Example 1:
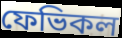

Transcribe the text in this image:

ফেভিকল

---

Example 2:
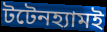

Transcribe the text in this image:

টটেনহ্যামই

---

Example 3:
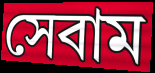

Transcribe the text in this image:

সেবাম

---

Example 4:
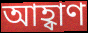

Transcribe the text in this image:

আহ্বাণ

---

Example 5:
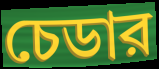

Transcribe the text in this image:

চেডার